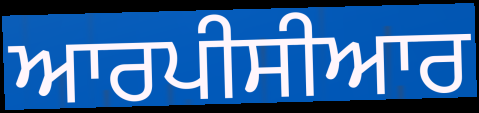
ਆਰਪੀਸੀਆਰ